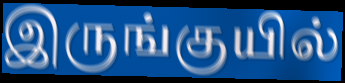
இருங்குயில்